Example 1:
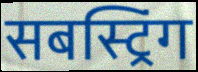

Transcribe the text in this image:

सबस्ट्रिंग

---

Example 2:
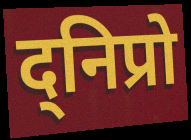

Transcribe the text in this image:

द्निप्रो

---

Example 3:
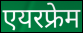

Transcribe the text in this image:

एयरफ्रेम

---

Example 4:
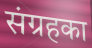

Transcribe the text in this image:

संग्रहका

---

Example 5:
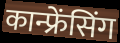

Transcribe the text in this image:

कान्फ्रेंसिंग